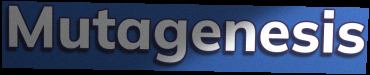
Mutagenesis